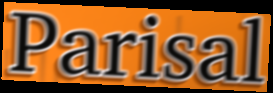
Parisal